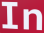
In